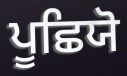
ਪੂਛਿਯੋ